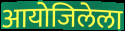
आयोजिलेला